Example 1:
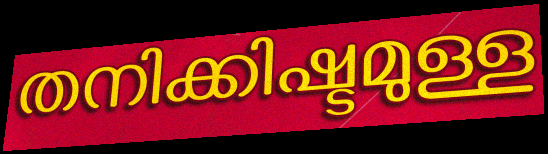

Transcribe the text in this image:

തനിക്കിഷ്ടമുള്ള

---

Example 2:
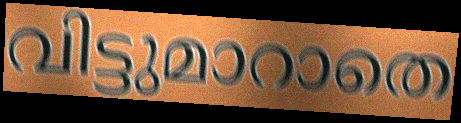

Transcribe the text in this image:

വിട്ടുമാറാതെ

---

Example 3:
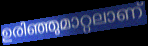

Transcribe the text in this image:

ഉരിഞ്ഞുമാറ്റലാണ്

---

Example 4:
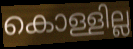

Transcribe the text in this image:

കൊള്ളില്ല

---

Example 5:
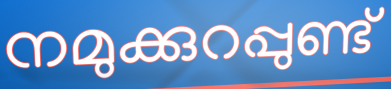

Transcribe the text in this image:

നമുക്കുറപ്പുണ്ട്